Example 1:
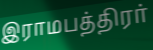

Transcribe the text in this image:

இராமபத்திரர்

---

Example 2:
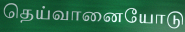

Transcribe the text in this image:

தெய்வானையோடு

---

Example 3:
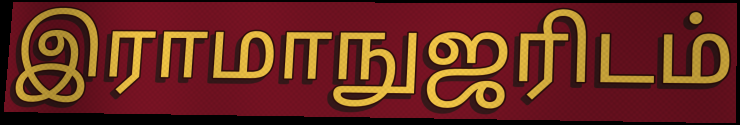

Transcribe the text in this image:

இராமாநுஜரிடம்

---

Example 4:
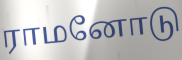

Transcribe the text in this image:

ராமனோடு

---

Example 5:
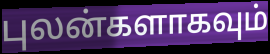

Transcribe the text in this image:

புலன்களாகவும்